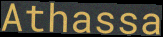
Athassa